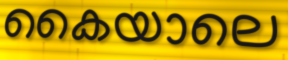
കൈയാലെ